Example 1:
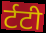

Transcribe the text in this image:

र्टटी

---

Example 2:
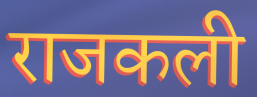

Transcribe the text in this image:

राजकली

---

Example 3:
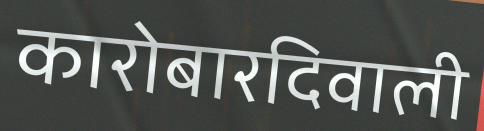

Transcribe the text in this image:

कारोबारदिवाली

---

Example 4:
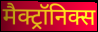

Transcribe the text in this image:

मैक्ट्रॉनिक्स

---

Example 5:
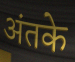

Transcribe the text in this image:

अंतके